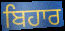
ਬਿਹਾਰ